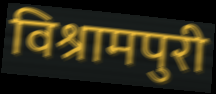
विश्रामपुरी